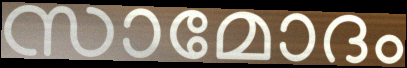
സാമോദം